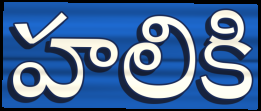
హలికి